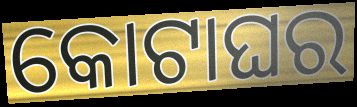
କୋଟାଘର